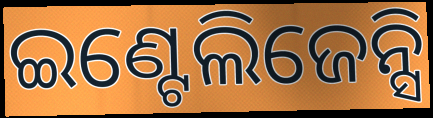
ଇଣ୍ଟେଲିଜେନ୍ସି